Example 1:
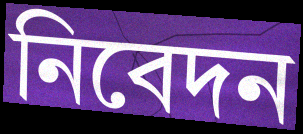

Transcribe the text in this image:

নিবেদন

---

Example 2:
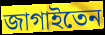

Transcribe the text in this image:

জাগাইতেন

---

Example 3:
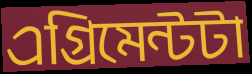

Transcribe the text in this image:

এগ্রিমেন্টটা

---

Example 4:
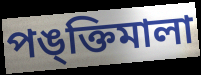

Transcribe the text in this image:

পঙ্ক্তিমালা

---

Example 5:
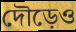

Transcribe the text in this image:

দৌড়েও